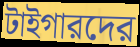
টাইগারদের